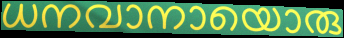
ധനവാനായൊരു